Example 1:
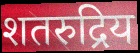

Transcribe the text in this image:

शतरुद्रिय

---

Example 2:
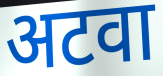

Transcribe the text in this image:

अटवा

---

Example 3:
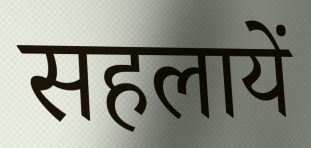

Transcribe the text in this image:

सहलायें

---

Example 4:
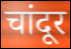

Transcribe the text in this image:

चांदूर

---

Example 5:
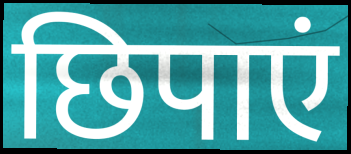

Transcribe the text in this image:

छिपाएं